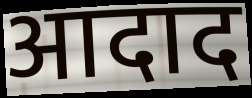
आदाद